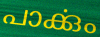
പാൎക്കും